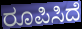
ರೂಪಿಸಿದೆ